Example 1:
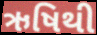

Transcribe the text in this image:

ઋષિથી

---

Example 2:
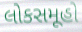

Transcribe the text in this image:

લોકસમૂહો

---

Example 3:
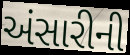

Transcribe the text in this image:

અંસારીની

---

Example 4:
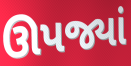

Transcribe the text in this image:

ઊપજ્યાં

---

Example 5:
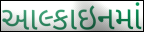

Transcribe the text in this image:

આલ્કાઇનમાં